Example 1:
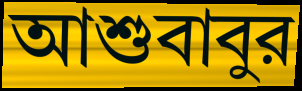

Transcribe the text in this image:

আশুবাবুর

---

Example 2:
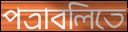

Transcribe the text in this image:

পত্রাবলিতে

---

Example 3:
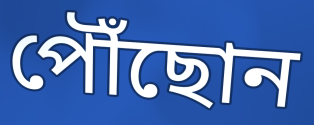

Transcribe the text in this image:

পৌঁছোন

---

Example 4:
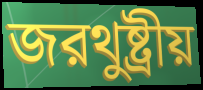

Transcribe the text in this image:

জরথুষ্ট্রীয়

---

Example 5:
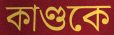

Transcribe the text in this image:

কাণ্ডকে